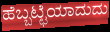
ಹೆಬ್ಬಟ್ಟೆಯಾದುದು